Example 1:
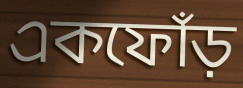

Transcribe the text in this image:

একফোঁড়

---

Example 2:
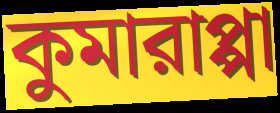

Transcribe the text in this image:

কুমারাপ্পা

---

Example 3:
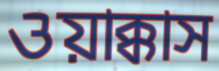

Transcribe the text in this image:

ওয়াক্কাস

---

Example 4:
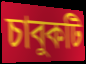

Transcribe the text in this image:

চাবুকটি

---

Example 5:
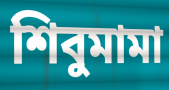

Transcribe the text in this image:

শিবুমামা